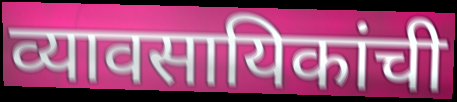
व्यावसायिकांची